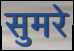
सुमरे